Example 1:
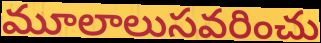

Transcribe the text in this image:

మూలాలుసవరించు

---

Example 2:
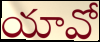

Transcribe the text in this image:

యావో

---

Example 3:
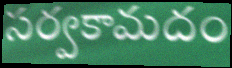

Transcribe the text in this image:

సర్వకామదం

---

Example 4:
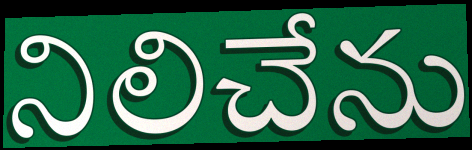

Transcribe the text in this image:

నిలిచేను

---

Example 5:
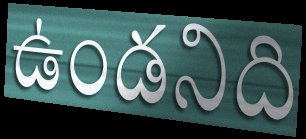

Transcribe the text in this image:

ఉండనిది